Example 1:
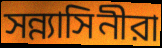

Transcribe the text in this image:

সন্ন্যাসিনীরা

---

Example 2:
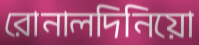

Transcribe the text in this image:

রোনালদিনিয়ো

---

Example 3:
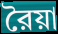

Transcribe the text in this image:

রৈয়া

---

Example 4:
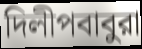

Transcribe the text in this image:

দিলীপবাবুরা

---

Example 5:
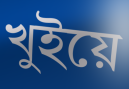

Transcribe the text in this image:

খুইয়ে